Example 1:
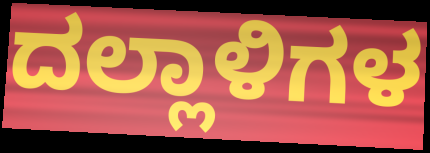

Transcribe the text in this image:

ದಲ್ಲಾಳಿಗಳ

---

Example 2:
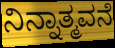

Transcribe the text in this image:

ನಿನ್ನಾತ್ಮವನೆ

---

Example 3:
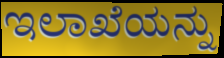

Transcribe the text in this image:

ಇಲಾಖೆಯನ್ನು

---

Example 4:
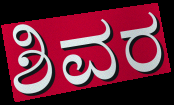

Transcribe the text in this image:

ಶಿವರ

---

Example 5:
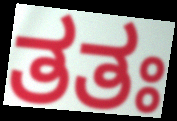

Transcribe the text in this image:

ತತಃ